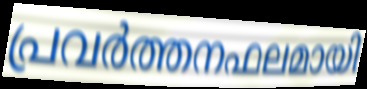
പ്രവർത്തനഫലമായി